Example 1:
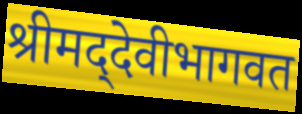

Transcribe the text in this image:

श्रीमद्‌देवीभागवत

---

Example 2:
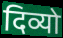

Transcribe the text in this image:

दिव्यो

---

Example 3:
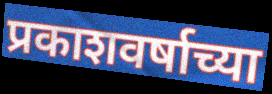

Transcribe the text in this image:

प्रकाशवर्षाच्या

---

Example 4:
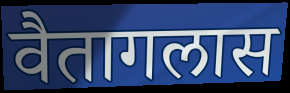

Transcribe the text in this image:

वैतागलास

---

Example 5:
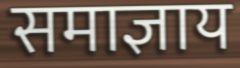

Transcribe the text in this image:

समाज्ञाय